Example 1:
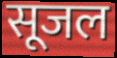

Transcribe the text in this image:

सूजल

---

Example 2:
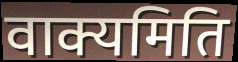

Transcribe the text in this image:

वाक्यमिति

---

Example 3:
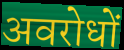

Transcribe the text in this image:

अवरोधों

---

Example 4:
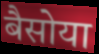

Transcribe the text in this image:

बैसोया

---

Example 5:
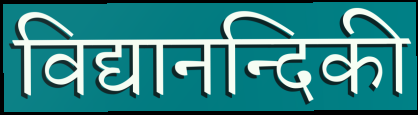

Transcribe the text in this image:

विद्यानन्दिकी